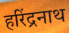
हरिंद्रनाथ